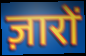
ज़ारों